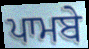
ਪਾਮਬੇ